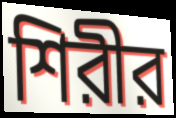
শিরীর